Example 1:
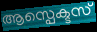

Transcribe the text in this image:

ആസ്പെക്ടസ്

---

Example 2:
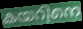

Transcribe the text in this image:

കയറിനെ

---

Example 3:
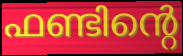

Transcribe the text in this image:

ഫണ്ടിന്റെ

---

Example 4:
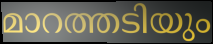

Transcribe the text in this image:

മാറത്തടിയും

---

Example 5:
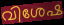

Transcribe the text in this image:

വിശേഷ